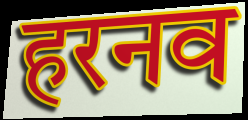
हरनव